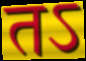
तऽ